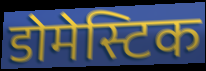
डोमेस्टिक